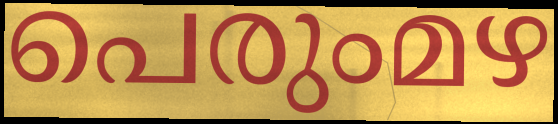
പെരുംമഴ